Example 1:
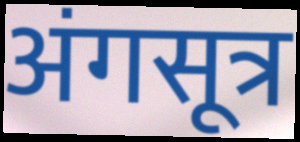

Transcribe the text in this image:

अंगसूत्र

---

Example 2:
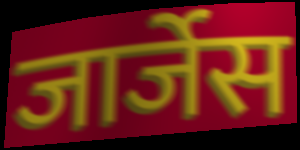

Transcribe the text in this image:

जार्जेस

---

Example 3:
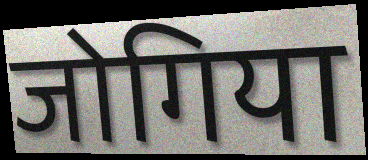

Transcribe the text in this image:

जोगिया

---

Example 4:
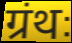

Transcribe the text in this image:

ग्रंथः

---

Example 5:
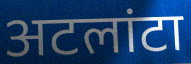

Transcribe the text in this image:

अटलांटा